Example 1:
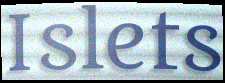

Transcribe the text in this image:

Islets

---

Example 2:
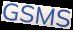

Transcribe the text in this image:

GSMS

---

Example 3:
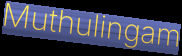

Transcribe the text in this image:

Muthulingam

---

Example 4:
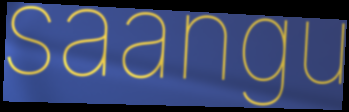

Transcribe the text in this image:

saangu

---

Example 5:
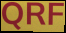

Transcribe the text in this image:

QRF